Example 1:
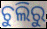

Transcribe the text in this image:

ଚୁଲିରୁ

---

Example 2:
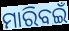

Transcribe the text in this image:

ମାରିବଇଁ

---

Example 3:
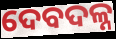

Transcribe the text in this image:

ଦେବଦଳ୍ନ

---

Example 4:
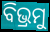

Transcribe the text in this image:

ବିଭ୍ରମୁ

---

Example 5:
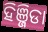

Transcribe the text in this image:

ହିଞ୍ଜିଡା